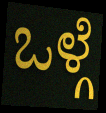
ಒಳ್ಗೆ